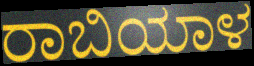
ರಾಬಿಯಾಳ